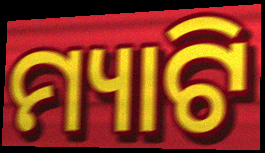
ମ୍ୟାଟି